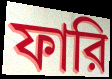
ফারি